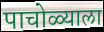
पाचोळ्याला